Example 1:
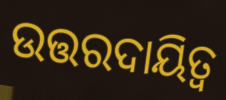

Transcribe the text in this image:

ଉତ୍ତରଦାୟିତ୍ଵ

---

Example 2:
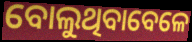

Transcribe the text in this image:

ବୋଲୁଥିବାବେଳେ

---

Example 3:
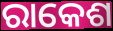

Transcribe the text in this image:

ରାକେଶ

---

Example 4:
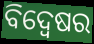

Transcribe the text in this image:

ବିଦ୍ବେଷର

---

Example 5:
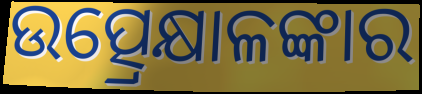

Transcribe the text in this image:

ଉତ୍ପ୍ରେକ୍ଷାଳଙ୍କାର